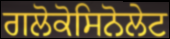
ਗਲੋਕੋਸਿਨੋਲੇਟ